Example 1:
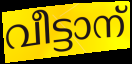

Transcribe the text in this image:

വീട്ടാന്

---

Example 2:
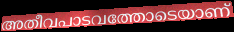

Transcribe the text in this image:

അതീവപാടവത്തോടെയാണ്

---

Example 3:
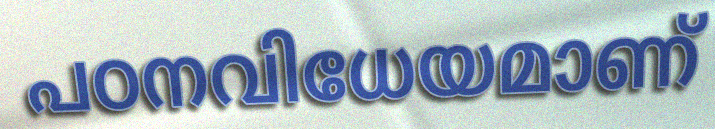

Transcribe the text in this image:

പഠനവിധേയമാണ്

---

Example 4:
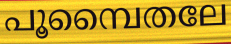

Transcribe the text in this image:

പൂമ്പൈതലേ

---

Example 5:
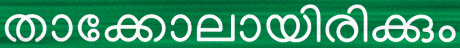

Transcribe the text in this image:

താക്കോലായിരിക്കും